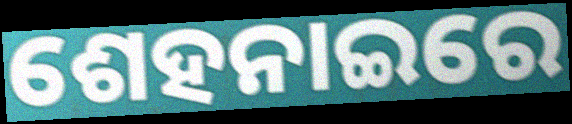
ଶେହନାଇରେ